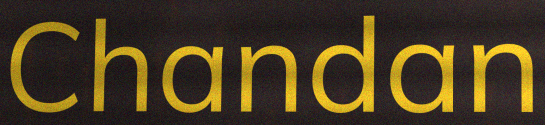
Chandan